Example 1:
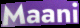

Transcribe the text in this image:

Maani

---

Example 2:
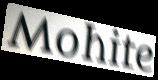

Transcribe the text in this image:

Mohite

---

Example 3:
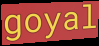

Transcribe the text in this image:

goyal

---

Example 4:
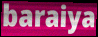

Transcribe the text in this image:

baraiya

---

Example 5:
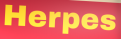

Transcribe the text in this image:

Herpes